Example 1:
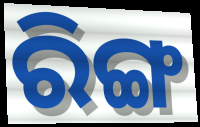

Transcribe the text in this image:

ରିଙ୍ଗ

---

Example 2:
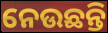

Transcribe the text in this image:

ନେଉଛନ୍ତି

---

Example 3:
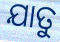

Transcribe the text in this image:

ଯାତୁ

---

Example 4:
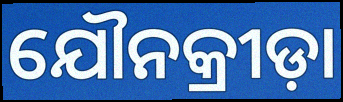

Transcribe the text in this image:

ଯୌନକ୍ରୀଡ଼ା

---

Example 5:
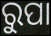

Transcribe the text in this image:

ରୁପା